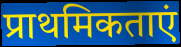
प्राथमिकताएं